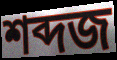
শব্দজ